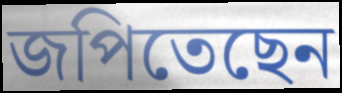
জপিতেছেন